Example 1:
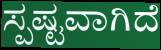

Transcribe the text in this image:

ಸ್ಪಷ್ಟವಾಗಿದೆ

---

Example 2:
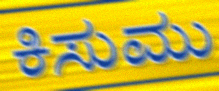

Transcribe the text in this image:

ಕಿಸುಮು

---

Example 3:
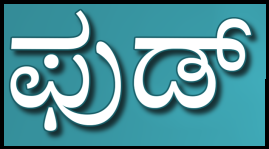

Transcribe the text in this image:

ಫುಡ್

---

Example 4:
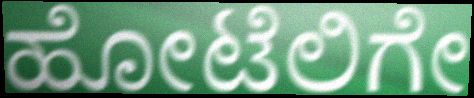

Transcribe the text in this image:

ಹೋಟೆಲಿಗೇ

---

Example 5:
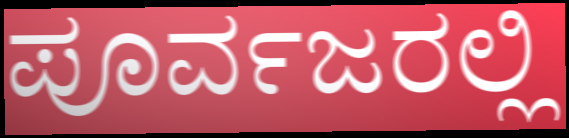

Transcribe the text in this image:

ಪೂರ್ವಜರಲ್ಲಿ